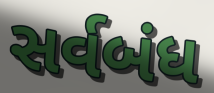
સર્વબંધ